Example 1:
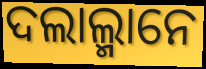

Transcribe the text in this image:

ଦଲାଲ୍ମାନେ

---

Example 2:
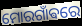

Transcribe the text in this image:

ମୋରଗାଁଵରେ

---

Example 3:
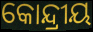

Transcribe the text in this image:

କୋନ୍ଦ୍ରୀୟ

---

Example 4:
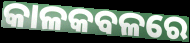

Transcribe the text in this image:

କାଳକବଳରେ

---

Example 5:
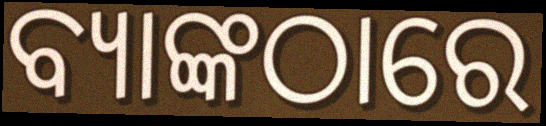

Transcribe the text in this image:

ବ୍ୟାଙ୍କଠାରେ